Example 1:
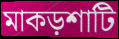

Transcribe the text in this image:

মাকড়শাটি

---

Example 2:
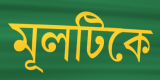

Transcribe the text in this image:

মূলটিকে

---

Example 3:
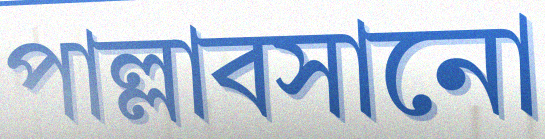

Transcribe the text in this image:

পাল্লাবসানো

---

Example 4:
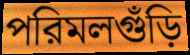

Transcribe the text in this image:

পরিমলগুঁড়ি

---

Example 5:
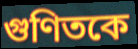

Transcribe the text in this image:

গুণিতকে